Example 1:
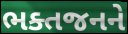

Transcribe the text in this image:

ભક્તજનને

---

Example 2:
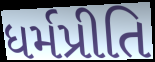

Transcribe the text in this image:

ધર્મપ્રીતિ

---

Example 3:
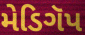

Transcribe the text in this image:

મેડિગૅપ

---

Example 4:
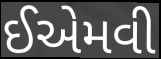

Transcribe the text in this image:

ઈએમવી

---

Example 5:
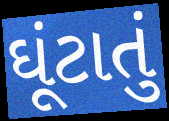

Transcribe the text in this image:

ઘૂંટાતું